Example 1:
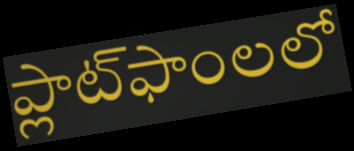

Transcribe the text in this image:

ప్లాట్‌ఫాంలలో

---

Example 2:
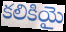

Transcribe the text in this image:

కలికియై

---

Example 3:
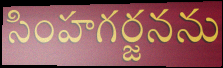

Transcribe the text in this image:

సింహగర్జనను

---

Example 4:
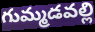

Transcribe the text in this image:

గుమ్మడవల్లి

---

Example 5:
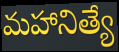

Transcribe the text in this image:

మహానిత్యే